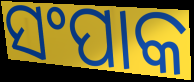
ସଂପାକ